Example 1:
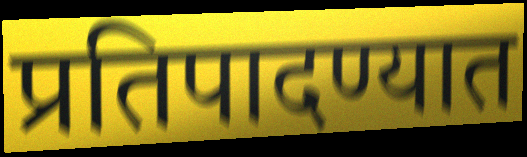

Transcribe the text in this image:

प्रतिपादण्यात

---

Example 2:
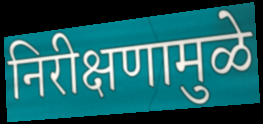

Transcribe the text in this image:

निरीक्षणामुळे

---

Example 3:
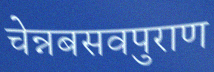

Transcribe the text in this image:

चेन्नबसवपुराण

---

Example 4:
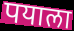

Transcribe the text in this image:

पयाला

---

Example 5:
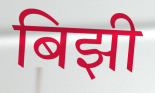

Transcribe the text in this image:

बिझी